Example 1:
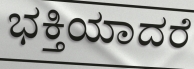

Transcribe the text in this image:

ಭಕ್ತಿಯಾದರೆ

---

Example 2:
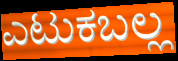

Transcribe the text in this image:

ಎಟುಕಬಲ್ಲ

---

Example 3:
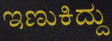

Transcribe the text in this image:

ಇಣುಕಿದ್ದು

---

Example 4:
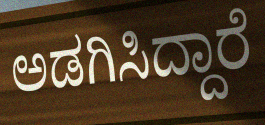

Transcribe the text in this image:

ಅಡಗಿಸಿದ್ದಾರೆ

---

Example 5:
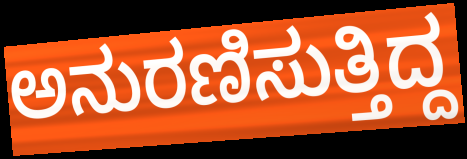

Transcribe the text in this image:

ಅನುರಣಿಸುತ್ತಿದ್ದ